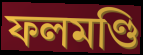
ফলমণ্ডি